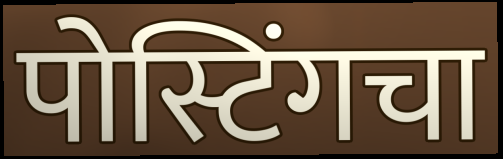
पोस्टिंगचा